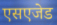
एसएजेड